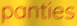
panties